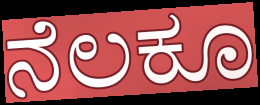
ನೆಲಕೂ